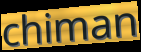
chiman